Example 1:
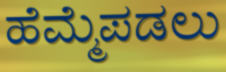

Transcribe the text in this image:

ಹೆಮ್ಮೆಪಡಲು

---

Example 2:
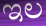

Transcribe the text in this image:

ಇಲ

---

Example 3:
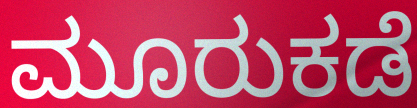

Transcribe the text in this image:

ಮೂರುಕಡೆ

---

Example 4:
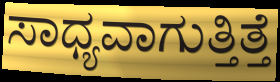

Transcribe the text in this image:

ಸಾಧ್ಯವಾಗುತ್ತಿತ್ತೆ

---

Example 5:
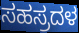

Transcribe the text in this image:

ಸಹಸ್ರದಳ